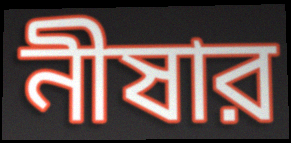
নীষার